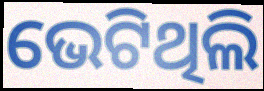
ଭେଟିଥିଲି